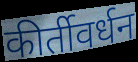
कीर्तीवर्धन